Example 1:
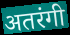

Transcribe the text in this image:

अतरंगी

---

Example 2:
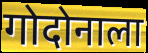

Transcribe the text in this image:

गोदोनाला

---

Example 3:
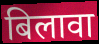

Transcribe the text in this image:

बिलावा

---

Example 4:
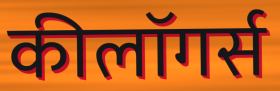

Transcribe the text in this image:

कीलॉगर्स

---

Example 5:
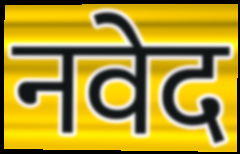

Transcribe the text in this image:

नवेद